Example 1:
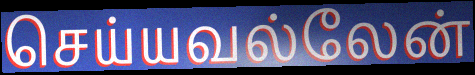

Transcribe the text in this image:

செய்யவல்லேன்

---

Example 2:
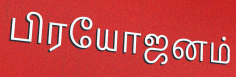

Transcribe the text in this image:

பிரயோஜனம்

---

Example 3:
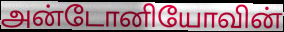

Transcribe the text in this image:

அன்டோனியோவின்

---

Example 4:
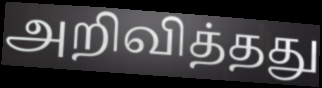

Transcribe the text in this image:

அறிவித்தது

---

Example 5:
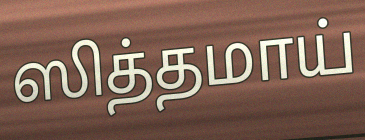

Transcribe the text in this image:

ஸித்தமாய்